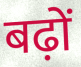
बढ़ों